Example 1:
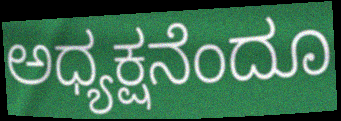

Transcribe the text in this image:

ಅಧ್ಯಕ್ಷನೆಂದೂ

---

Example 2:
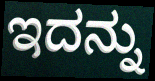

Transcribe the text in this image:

ಇದನ್ನು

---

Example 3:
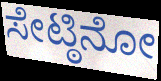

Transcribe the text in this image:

ಸೇಟ್ಠಿನೋ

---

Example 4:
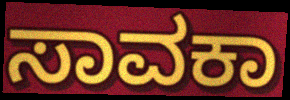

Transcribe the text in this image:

ಸಾವಕಾ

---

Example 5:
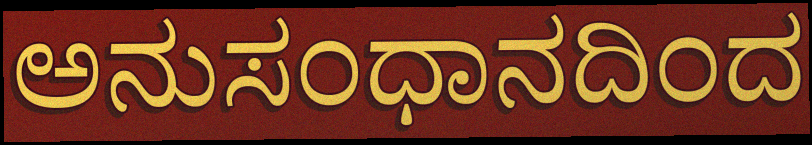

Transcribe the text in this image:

ಅನುಸಂಧಾನದಿಂದ